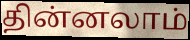
தின்னலாம்